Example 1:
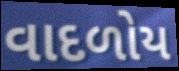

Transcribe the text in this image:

વાદળોય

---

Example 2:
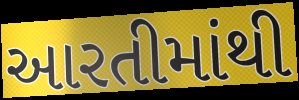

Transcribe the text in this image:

આરતીમાંથી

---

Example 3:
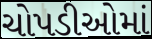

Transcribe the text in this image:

ચોપડીઓમાં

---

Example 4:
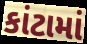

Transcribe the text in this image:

કાંટામાં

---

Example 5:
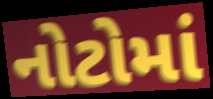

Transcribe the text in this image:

નોટોમાં